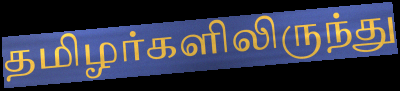
தமிழர்களிலிருந்து